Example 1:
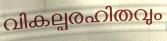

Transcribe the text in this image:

വികല്പരഹിതവും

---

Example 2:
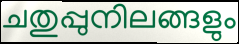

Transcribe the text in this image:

ചതുപ്പുനിലങ്ങളും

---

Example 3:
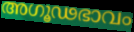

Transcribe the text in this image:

അഗൂഢഭാവം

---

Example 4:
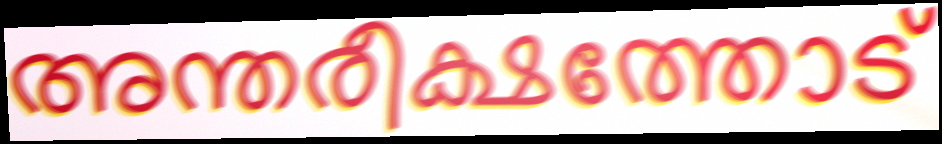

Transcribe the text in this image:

അന്തരീക്ഷത്തോട്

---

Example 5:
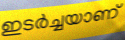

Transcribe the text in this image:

ഇടർച്ചയാണ്